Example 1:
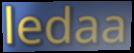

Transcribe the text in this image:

ledaa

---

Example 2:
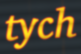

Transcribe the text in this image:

tych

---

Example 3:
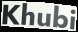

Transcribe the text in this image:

Khubi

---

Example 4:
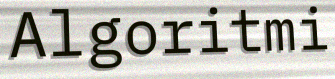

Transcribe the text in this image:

Algoritmi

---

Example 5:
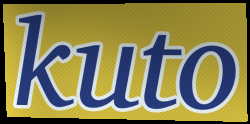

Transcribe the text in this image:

kuto